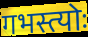
गभस्त्योः